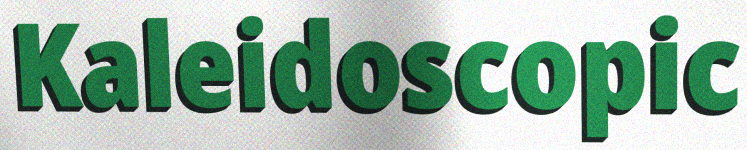
Kaleidoscopic